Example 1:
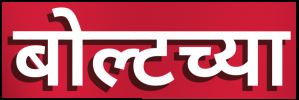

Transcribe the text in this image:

बोल्टच्या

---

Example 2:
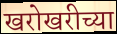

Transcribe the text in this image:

खरोखरीच्या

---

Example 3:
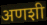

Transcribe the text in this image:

अणशी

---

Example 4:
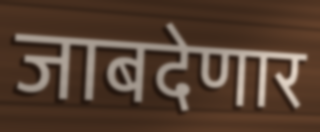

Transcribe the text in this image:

जाबदेणार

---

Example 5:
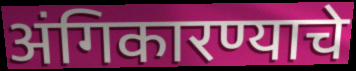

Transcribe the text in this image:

अंगिकारण्याचे